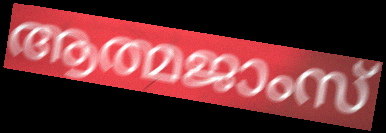
ആത്മജാംസ്